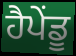
ਹੈਪੇਂਡੂ